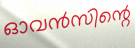
ഓവൻസിന്റെ